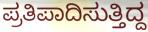
ಪ್ರತಿಪಾದಿಸುತ್ತಿದ್ದ